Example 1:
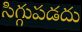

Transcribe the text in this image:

సిగ్గుపడదు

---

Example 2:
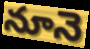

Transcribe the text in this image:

నూనె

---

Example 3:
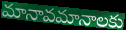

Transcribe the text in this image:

మానావమానాలకు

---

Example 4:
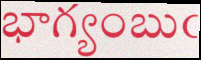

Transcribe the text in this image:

భాగ్యంబుఁ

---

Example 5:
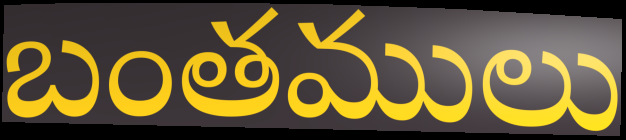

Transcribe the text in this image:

బంతములు